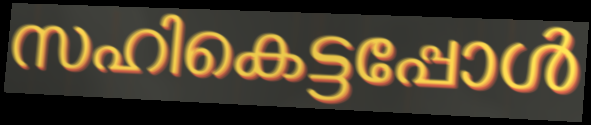
സഹികെട്ടപ്പോൾ